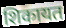
शिकायत